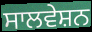
ਸਾਲਵੇਸ਼ਨ